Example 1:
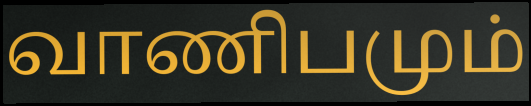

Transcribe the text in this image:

வாணிபமும்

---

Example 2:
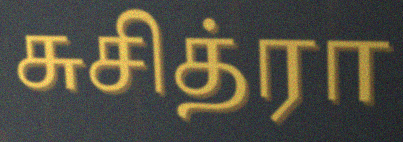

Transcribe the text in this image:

சுசித்ரா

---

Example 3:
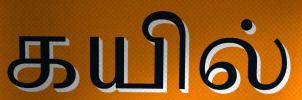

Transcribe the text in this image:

கயில்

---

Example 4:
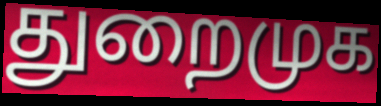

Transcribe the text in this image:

துறைமுக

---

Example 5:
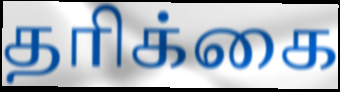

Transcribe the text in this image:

தரிக்கை